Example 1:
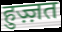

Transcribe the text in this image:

हुज़्ज़त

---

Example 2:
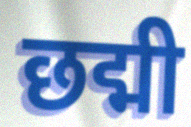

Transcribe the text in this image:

छद्मी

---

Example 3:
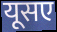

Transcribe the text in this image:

यूसए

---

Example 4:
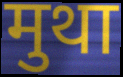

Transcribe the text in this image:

मुथा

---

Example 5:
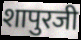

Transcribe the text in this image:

शापुरजी